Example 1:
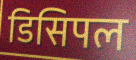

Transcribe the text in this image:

डिसिपल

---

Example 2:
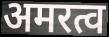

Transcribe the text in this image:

अमरत्व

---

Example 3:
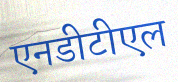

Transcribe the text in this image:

एनडीटीएल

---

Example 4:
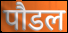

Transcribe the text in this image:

पौडल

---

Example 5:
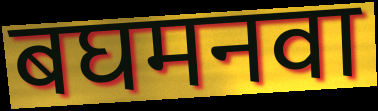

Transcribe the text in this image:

बघमनवा